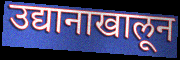
उद्यानाखालून